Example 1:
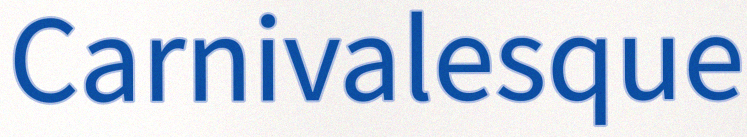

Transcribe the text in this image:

Carnivalesque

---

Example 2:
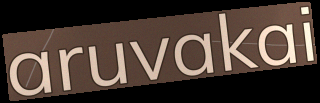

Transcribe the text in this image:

aruvakai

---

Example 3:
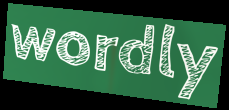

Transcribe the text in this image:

wordly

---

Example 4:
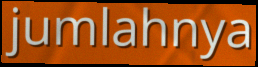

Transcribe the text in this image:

jumlahnya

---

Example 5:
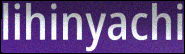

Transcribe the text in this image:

lihinyachi